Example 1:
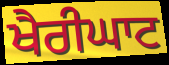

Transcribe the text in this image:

ਖੈਰੀਘਾਟ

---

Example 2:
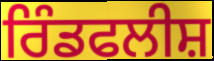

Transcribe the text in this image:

ਰਿੰਡਫਲੀਸ਼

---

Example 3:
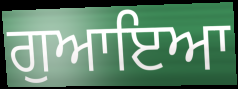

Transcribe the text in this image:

ਗੁਆਇਆ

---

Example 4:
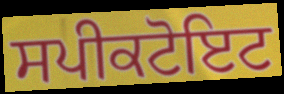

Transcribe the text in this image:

ਸਪੀਕਟੋਇਟ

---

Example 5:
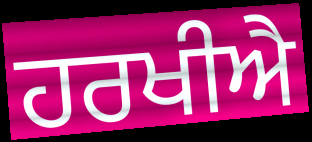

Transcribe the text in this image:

ਹਰਖੀਐ